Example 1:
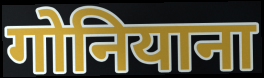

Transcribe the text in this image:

गोनियाना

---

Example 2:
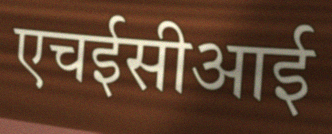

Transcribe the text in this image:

एचईसीआई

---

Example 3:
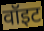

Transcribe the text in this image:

वॉइट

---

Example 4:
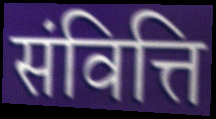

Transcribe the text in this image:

संवित्ति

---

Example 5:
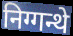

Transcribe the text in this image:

निग्गन्थे